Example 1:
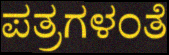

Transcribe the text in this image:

ಪತ್ರಗಳಂತೆ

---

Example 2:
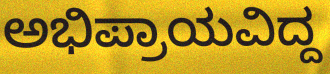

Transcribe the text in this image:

ಅಭಿಪ್ರಾಯವಿದ್ದ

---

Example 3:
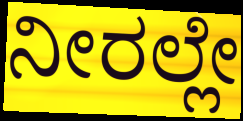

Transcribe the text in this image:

ನೀರಲ್ಲೇ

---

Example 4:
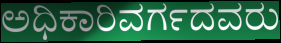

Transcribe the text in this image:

ಅಧಿಕಾರಿವರ್ಗದವರು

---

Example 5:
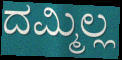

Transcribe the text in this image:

ದಮ್ಮಿಲ್ಲ